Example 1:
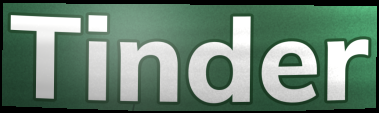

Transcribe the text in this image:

Tinder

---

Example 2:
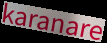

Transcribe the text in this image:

karanare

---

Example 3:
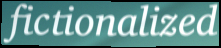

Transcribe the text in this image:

fictionalized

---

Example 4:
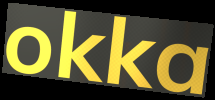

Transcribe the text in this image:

okka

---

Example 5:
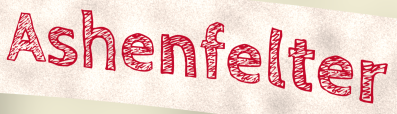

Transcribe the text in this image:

Ashenfelter